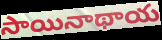
సాయినాథాయ